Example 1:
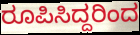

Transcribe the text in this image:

ರೂಪಿಸಿದ್ದರಿಂದ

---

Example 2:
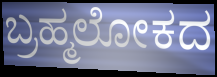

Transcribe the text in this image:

ಬ್ರಹ್ಮಲೋಕದ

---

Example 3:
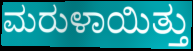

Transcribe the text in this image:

ಮರುಳಾಯಿತ್ತು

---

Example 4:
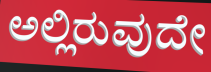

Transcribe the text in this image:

ಅಲ್ಲಿರುವುದೇ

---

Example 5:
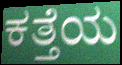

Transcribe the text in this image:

ಕತ್ತೆಯ